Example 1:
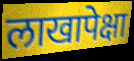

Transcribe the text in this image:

लाखापेक्षा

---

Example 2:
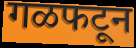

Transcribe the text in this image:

गळफटून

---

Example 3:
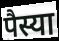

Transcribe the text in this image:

पैस्या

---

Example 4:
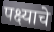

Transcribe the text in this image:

पक्ष्याचे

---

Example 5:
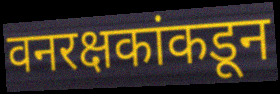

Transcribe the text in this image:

वनरक्षकांकडून